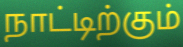
நாட்டிற்கும்